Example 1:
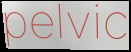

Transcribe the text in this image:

pelvic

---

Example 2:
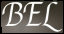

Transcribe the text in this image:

BEL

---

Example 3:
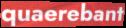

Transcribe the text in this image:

quaerebant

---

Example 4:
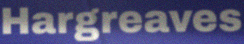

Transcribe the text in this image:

Hargreaves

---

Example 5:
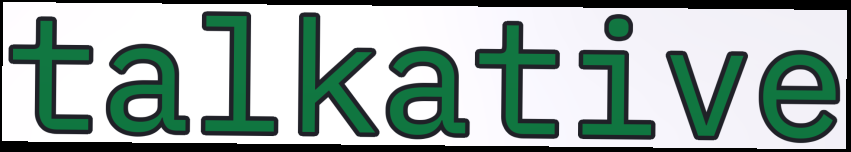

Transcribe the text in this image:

talkative